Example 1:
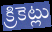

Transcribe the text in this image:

క్రికెట్లు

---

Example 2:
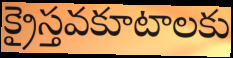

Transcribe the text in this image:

క్రైస్తవకూటాలకు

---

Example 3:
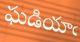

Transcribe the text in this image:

ఘడియాఁ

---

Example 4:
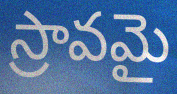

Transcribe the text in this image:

స్రావమై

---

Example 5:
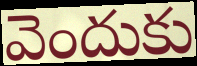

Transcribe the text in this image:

వెందుకు